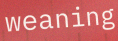
weaning